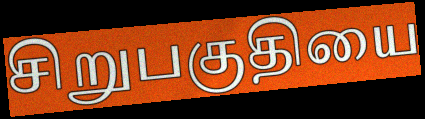
சிறுபகுதியை